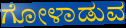
ಗೋಳಾಡುವ